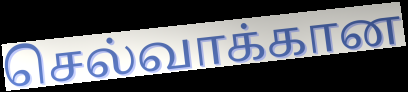
செல்வாக்கான